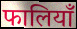
फालियाँ